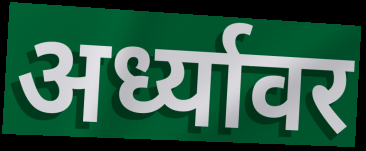
अर्ध्यावर